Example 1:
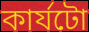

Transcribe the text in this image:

কাৰ্যটো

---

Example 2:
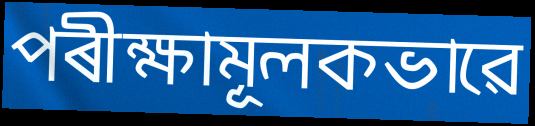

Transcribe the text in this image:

পৰীক্ষামূলকভাৱে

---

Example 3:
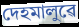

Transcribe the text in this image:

দেহমালুৱে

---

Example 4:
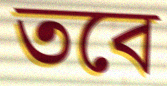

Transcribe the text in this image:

তবে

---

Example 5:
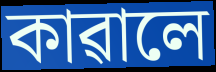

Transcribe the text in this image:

কাৱালে